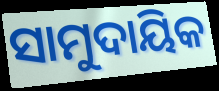
ସାମୁଦାୟିକ